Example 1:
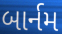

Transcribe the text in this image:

બાર્નમ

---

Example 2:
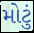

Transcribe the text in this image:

મોટું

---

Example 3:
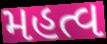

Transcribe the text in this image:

મહત્વ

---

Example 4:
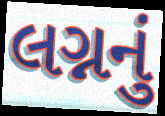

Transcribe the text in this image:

લગ્નનું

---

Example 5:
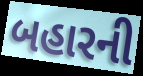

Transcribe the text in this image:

બહારની